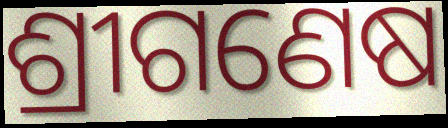
ଶ୍ରୀଗଣେଷ